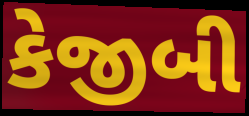
કેજીબી